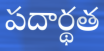
పదార్థత